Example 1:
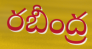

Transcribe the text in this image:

రబీంద్ర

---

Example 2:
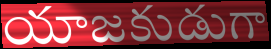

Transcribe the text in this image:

యాజకుడుగా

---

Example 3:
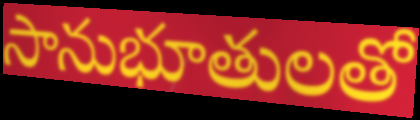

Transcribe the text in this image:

సానుభూతులతో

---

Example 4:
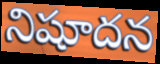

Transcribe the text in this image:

నిషూదన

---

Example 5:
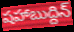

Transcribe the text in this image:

షహాబుద్దిన్